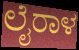
ಲೈರಾಳ